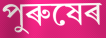
পুৰুষেৰ